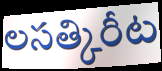
లసత్కిరీట